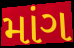
માંગ